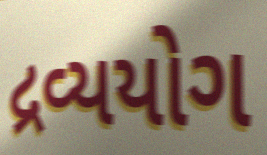
દ્રવ્યયોગ